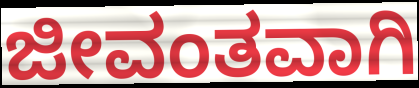
ಜೀವಂತವಾಗಿ